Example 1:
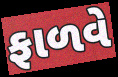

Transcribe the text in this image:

ફાળવે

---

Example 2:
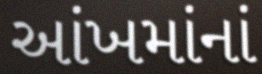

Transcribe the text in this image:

આંખમાંનાં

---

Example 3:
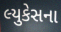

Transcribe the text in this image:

લ્યુકેસના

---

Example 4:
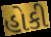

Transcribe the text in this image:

હોકી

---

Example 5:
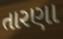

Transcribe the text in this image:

તારણા